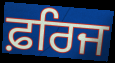
ਫ਼ਰਿਜ